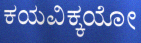
ಕಯವಿಕ್ಕಯೋ